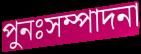
পুনঃসম্পাদনা